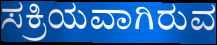
ಸಕ್ರಿಯವಾಗಿರುವ